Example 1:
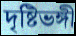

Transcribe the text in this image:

দৃষ্টিভঙ্গী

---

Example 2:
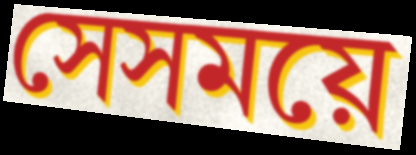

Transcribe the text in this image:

সেসময়ে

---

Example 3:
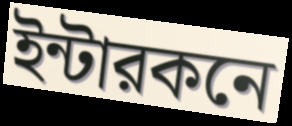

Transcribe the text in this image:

ইন্টারকনে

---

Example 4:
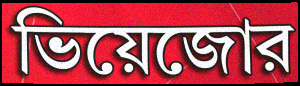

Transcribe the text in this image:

ভিয়েজোর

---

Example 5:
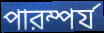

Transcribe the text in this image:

পারম্পর্য